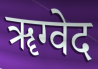
ॠग्वेद